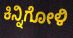
ಕಿನ್ನಿಗೋಳಿ